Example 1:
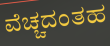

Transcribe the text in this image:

ವೆಚ್ಚದಂತಹ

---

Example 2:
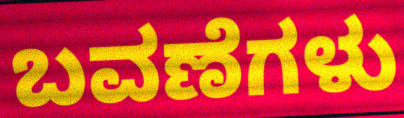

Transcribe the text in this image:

ಬವಣೆಗಳು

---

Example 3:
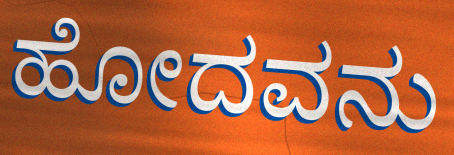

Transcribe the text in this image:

ಹೋದವನು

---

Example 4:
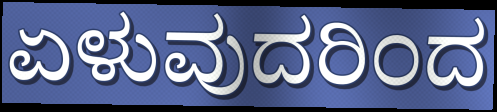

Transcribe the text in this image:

ಏಳುವುದರಿಂದ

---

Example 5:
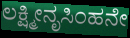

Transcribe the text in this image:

ಲಕ್ಷ್ಮೀನೃಸಿಂಹನೇ